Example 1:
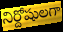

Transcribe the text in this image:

నిర్దోషులగా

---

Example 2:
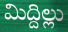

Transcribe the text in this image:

మిద్దిల్లు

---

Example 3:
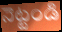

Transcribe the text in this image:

నెట్టండి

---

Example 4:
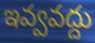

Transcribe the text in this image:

ఇవ్వవద్దు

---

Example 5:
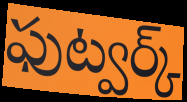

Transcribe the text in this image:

ఫుట్వర్క్